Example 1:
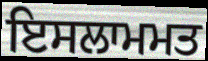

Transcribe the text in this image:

ਇਸਲਾਮਮਤ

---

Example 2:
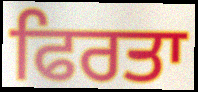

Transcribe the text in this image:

ਫਿਰਤਾ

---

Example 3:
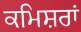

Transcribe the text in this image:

ਕਮਿਸ਼ਰਾਂ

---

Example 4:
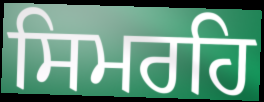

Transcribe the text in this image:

ਸਿਮਰਹਿ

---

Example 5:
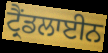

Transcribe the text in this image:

ਟ੍ਰੈਂਡਲਾਈਨ